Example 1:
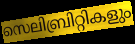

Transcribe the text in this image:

സെലിബ്രിറ്റികളും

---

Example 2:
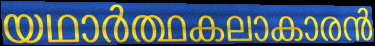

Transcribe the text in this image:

യഥാർത്ഥകലാകാരൻ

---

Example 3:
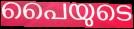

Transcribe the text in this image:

പൈയുടെ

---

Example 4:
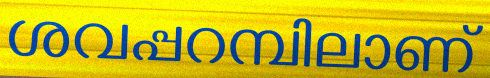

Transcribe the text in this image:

ശവപ്പറമ്പിലാണ്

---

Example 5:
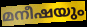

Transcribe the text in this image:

മനീഷയും